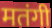
मतंगी